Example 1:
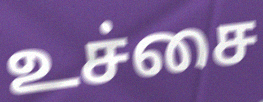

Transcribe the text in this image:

உச்சை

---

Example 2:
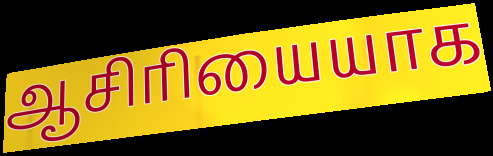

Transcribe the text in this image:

ஆசிரியையாக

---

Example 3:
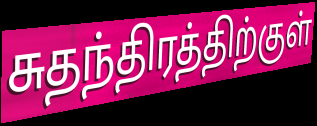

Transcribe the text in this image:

சுதந்திரத்திற்குள்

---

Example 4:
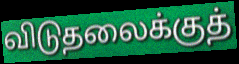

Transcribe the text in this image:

விடுதலைக்குத்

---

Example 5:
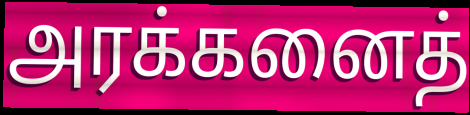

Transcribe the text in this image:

அரக்கனைத்